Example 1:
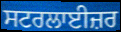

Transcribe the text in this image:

ਸਟਰਲਾਈਜ਼ਰ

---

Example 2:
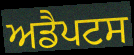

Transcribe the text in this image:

ਅਡੈਪਟਸ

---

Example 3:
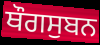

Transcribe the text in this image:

ਥੌਗਸੁਬਨ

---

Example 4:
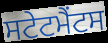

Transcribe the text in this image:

ਸਟੇਟਮੈਂਟਸ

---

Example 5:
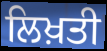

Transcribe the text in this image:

ਲਿਖ਼ਤੀ